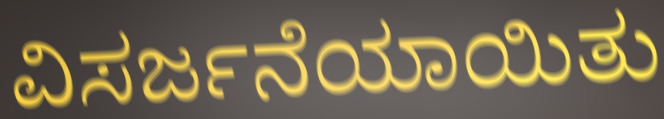
ವಿಸರ್ಜನೆಯಾಯಿತು